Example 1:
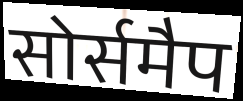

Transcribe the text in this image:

सोर्समैप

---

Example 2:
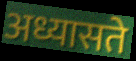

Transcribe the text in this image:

अध्यासते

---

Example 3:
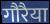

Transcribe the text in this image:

गौरैया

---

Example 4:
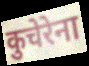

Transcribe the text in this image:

कुचेरेना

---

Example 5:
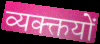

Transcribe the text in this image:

व्यक्क्तयों